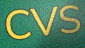
CVS